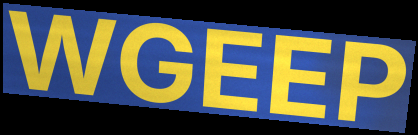
WGEEP